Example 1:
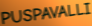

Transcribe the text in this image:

PUSPAVALLI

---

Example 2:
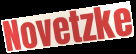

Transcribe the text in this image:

Novetzke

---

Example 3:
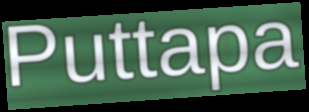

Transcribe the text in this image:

Puttapa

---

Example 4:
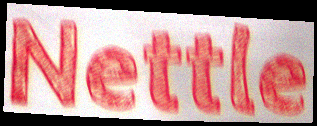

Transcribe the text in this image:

Nettle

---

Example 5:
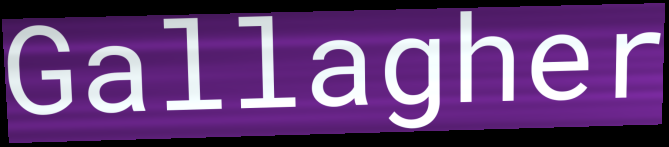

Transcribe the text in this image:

Gallagher